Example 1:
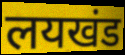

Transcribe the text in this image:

लयखंड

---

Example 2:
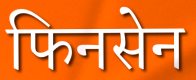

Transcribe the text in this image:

फिनसेन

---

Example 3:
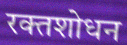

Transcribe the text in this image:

रक्तशोधन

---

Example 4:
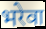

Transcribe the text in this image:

भरेवा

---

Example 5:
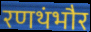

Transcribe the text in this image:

रणथंभौर